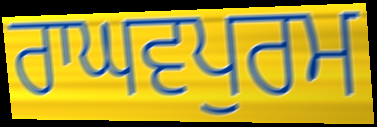
ਰਾਘਵਪੁਰਮ